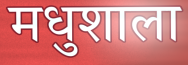
मधुशाला